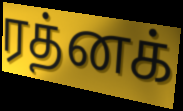
ரத்னக்